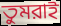
তুমরাই